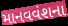
માનવવંશના